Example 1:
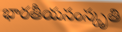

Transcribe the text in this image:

భారతీయసంస్కృతి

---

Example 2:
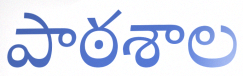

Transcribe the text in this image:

పాఠశాల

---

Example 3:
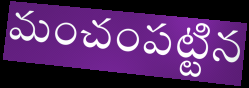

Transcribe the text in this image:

మంచంపట్టిన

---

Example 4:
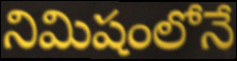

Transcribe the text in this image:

నిమిషంలోనే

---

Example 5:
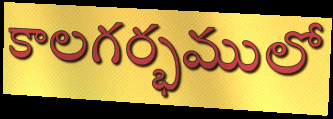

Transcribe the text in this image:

కాలగర్భములో